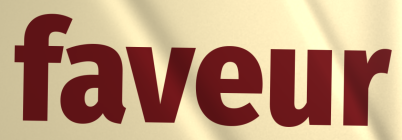
faveur